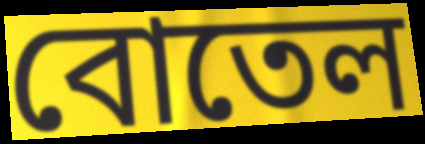
বোতেল